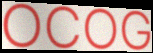
OCOG